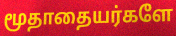
மூதாதையர்களே